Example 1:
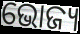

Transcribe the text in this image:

ଭୋଜ୍ୟ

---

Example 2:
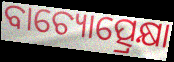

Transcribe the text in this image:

ବାଚ୍ୟୋତ୍ପ୍ରେକ୍ଷା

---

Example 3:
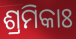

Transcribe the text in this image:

ଶ୍ରମିକାଃ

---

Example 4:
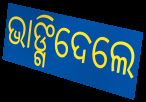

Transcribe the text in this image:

ଭାଙ୍ଗିଦେଲେ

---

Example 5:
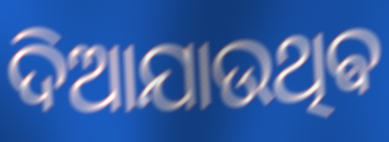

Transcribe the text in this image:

ଦିଆଯାଉଥିଵ